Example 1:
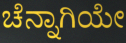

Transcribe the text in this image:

ಚೆನ್ನಾಗಿಯೇ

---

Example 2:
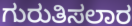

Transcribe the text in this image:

ಗುರುತಿಸಲಾರ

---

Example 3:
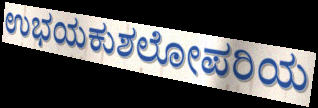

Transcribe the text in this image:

ಉಭಯಕುಶಲೋಪರಿಯ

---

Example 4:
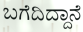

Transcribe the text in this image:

ಬಗೆದಿದ್ದಾನೆ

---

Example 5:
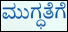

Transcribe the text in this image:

ಮುಗ್ಧತೆಗೆ